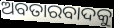
ଅବତାରବାଦକୁ